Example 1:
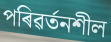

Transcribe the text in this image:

পৰিৱৰ্তনশীল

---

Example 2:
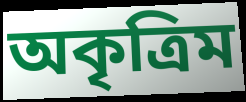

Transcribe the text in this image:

অকৃত্ৰিম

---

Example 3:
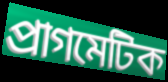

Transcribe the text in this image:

প্ৰাগমেটিক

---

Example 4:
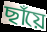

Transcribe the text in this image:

ছাঁয়ে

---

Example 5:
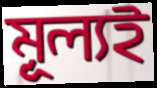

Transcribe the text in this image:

মূল্যই